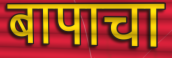
बापाचा